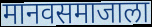
मानवसमाजाला